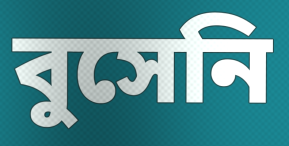
বুসেনি